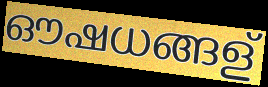
ഔഷധങ്ങള്